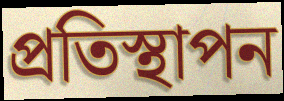
প্ৰতিস্থাপন